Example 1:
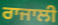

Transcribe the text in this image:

ਰਾਜਾਲੀ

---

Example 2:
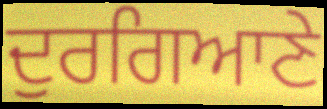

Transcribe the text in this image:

ਦੁਰਗਿਆਣੇ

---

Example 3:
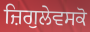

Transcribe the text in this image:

ਜ਼ਿਗੁਲੇਵਸਕੋ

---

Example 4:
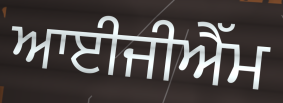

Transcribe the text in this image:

ਆਈਜੀਐੱਮ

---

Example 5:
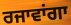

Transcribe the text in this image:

ਰਜਾਵਾਂਗਾ